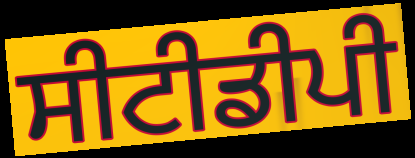
ਸੀਟੀਡੀਪੀ